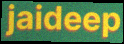
jaideep